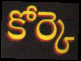
కోర్కె